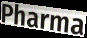
Pharma